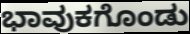
ಭಾವುಕಗೊಂಡು